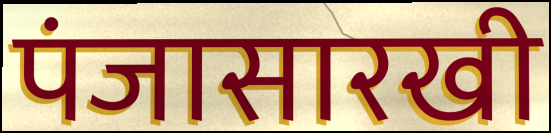
पंजासारखी